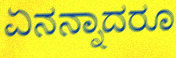
ಏನನ್ನಾದರೂ